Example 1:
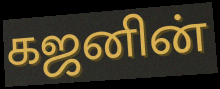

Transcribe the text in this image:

கஜனின்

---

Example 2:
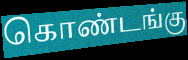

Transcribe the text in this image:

கொண்டங்கு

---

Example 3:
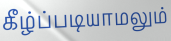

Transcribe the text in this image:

கீழ்ப்படியாமலும்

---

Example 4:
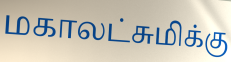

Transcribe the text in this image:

மகாலட்சுமிக்கு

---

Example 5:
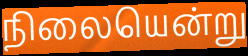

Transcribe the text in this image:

நிலையென்று